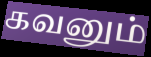
கவனும்